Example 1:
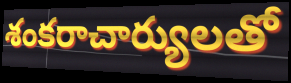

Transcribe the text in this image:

శంకరాచార్యులతో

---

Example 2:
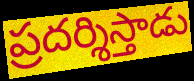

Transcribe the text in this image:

ప్రదర్శిస్తాడు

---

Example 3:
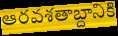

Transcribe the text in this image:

ఆరవశతాబ్దానికి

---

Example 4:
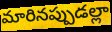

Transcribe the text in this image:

మారినప్పుడల్లా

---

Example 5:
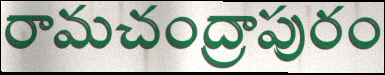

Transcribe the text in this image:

రామచంద్రాపురం